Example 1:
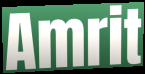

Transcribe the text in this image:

Amrit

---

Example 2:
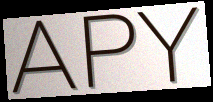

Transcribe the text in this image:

APY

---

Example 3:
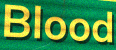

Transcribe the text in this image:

Blood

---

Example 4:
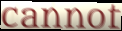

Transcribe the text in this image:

cannot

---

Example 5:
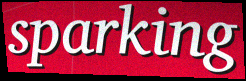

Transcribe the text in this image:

sparking